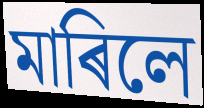
মাৰিলে